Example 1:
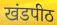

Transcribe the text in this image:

खंडपीठ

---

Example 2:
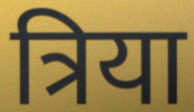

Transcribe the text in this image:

त्रिया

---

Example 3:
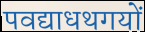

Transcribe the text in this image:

पवद्याधथगयों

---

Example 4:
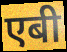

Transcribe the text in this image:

एबी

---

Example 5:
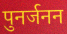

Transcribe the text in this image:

पुनर्जनन